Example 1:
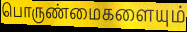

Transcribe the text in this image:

பொருண்மைகளையும்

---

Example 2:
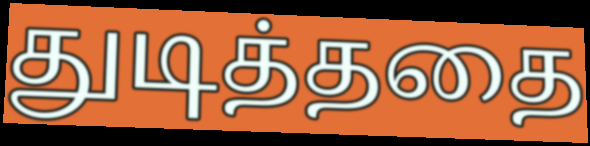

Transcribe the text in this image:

துடித்ததை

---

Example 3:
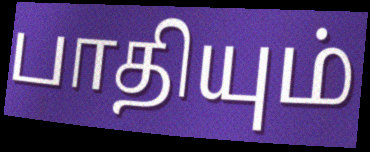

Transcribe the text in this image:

பாதியும்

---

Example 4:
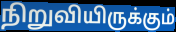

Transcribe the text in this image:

நிறுவியிருக்கும்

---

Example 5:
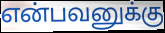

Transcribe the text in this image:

என்பவனுக்கு